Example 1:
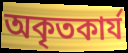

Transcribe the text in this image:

অকৃতকার্য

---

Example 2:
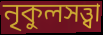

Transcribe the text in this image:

নৃকুলসত্ত্বা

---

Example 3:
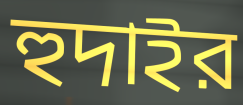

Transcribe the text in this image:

হুদাইর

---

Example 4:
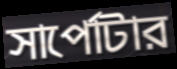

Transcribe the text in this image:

সার্পোটার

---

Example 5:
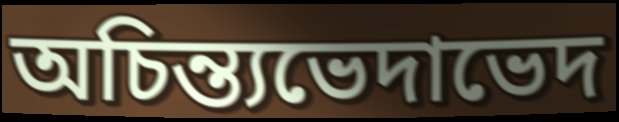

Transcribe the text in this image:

অচিন্ত্যভেদাভেদ